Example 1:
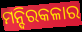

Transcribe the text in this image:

ମନ୍ଦିରକଳାର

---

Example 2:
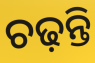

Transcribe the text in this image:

ଚଢ଼ନ୍ତି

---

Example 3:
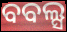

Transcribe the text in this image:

ବବଲ୍ସ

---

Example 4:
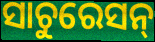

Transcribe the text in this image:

ସାଚୁରେସନ୍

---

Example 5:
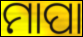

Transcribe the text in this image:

ମାପା